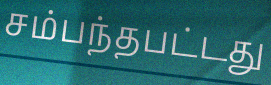
சம்பந்தபட்டது